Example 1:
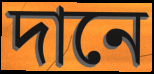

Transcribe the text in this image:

দানে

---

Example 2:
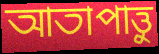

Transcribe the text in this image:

আতাপাত্তু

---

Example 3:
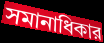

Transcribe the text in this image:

সমানাধিকার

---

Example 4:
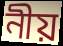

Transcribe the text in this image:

নীয়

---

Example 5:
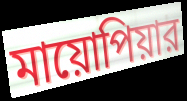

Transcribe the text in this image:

মায়োপিয়ার